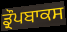
ਡ੍ਰੌਪਬਾਕਸ